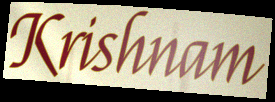
Krishnam